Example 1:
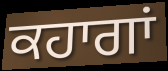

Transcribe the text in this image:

ਕਹਾਗਾਂ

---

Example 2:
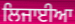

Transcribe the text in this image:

ਲਿਜਾਈਆ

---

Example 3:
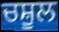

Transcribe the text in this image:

ਚਸ਼ੂਲ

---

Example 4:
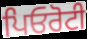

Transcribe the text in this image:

ਪਿਓਰੋਟੀ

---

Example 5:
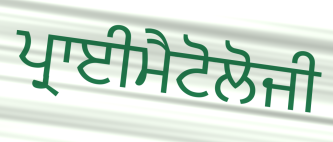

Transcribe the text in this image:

ਪ੍ਰਾਈਮੈਟੋਲੋਜੀ